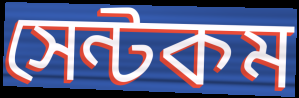
সেন্টকম